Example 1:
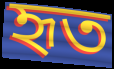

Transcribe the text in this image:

হৃত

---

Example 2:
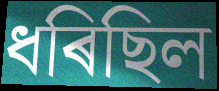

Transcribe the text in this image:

ধৰিছিল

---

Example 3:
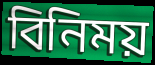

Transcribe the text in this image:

বিনিময়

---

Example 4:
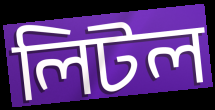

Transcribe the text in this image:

লিটল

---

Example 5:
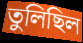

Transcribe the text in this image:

তুলিছিল